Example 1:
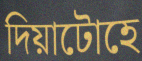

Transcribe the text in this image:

দিয়াটোহে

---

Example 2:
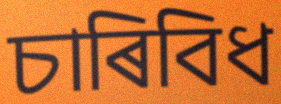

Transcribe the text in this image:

চাৰিবিধ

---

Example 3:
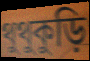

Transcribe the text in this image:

থুথুকুড়ি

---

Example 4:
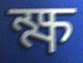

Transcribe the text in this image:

ক্ষ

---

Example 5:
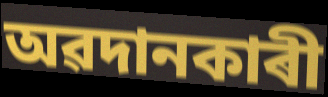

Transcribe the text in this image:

অৱদানকাৰী